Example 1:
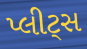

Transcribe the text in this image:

પ્લીટ્સ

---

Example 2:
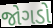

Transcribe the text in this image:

જોગડો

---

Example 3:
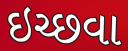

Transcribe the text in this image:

ઇચ્છવા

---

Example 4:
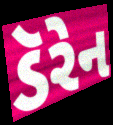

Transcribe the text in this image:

ડૅરેન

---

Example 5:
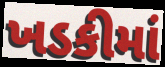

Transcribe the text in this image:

ખડકીમાં